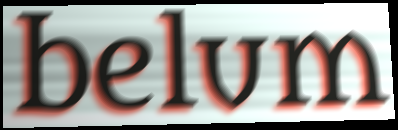
belum